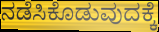
ನಡೆಸಿಕೊಡುವುದಕ್ಕೆ